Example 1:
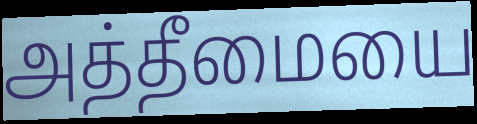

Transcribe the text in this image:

அத்தீமையை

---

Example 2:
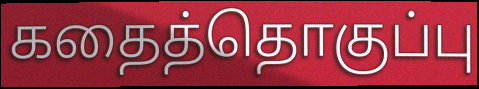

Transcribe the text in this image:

கதைத்தொகுப்பு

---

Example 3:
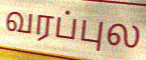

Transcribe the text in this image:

வரப்புல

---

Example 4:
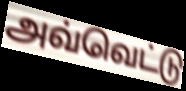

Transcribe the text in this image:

அவ்வெட்டு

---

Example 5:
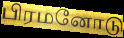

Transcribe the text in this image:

பிரமனோடு